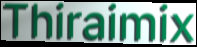
Thiraimix